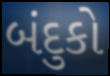
બંદુકો